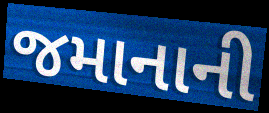
જમાનાની